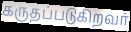
கருதப்படுகிறவர்